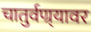
चातुर्वण्र्यावर